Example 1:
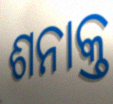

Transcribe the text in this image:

ଶନାକ୍ତ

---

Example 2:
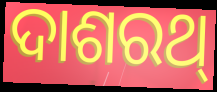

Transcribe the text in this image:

ଦାଶରଥ୍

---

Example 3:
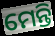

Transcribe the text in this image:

ମେନ୍ତି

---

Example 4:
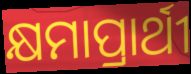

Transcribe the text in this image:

କ୍ଷମାପ୍ରାର୍ଥୀ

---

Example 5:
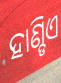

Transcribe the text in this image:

ହାଣ୍ଡିଏ